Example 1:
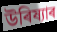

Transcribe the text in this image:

উৰিষ্যাৰ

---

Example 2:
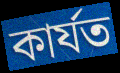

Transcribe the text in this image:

কাৰ্যত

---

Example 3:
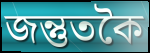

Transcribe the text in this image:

জন্তুতকৈ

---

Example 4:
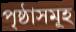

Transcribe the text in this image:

পৃষ্ঠাসমূহ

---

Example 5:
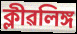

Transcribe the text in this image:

ক্লীৱলিঙ্গ